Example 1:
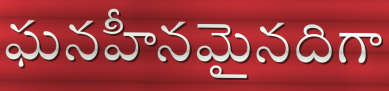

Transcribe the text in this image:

ఘనహీనమైనదిగా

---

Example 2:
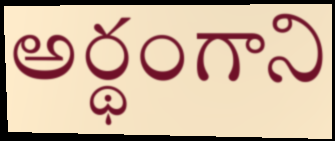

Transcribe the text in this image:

అర్థంగాని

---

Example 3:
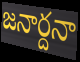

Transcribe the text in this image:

జనార్దనా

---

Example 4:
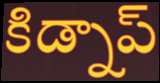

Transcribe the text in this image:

కిడ్నాప్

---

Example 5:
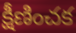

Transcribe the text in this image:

క్షీణించక